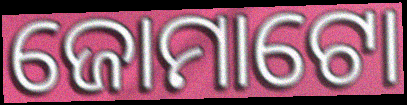
ଜୋମାଟୋ